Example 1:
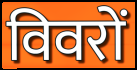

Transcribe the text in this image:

विवरों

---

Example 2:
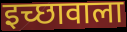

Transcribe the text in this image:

इच्छावाला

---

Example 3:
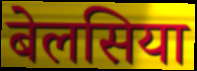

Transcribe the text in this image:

बेलसिया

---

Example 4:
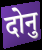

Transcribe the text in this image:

दोनु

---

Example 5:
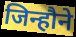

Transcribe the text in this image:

जिन्हौने